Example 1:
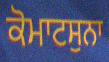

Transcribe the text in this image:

ਕੋਮਾਟਸੁਨਾ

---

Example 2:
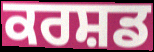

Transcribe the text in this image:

ਕਰਸ਼ਡ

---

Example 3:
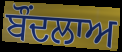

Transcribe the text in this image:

ਬੌਂਦਲਾਅ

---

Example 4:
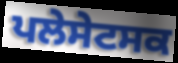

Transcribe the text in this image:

ਪਲੇਸੇਟਸਕ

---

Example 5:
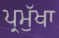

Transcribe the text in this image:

ਪ੍ਰਮੁੱਖਾ